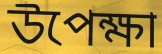
উপেক্ষা